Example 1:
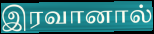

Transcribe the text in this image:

இரவானால்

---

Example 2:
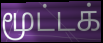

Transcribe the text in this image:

மூட்டக்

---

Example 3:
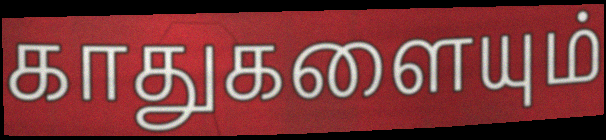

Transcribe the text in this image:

காதுகளையும்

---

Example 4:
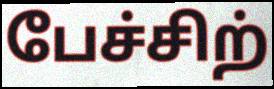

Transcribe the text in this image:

பேச்சிற்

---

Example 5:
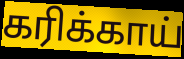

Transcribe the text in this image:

கரிக்காய்